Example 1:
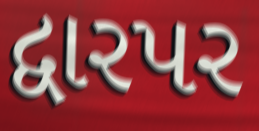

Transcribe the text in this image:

દ્વારપર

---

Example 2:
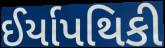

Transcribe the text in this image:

ઈર્યાપથિકી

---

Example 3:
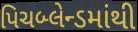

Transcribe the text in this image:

પિચબ્લેન્ડમાંથી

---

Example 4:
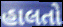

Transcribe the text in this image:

હાલતો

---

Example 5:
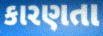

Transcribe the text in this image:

કારણતા